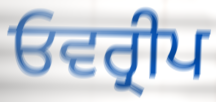
ਓਵਰ੍ਰੀਪ